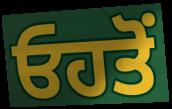
ਓਹਤੋਂ